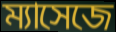
ম্যাসেজে